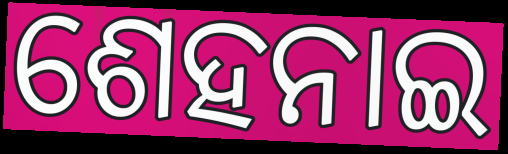
ଶେହନାଇ